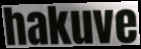
hakuve